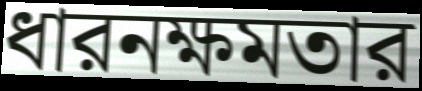
ধারনক্ষমতার